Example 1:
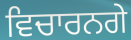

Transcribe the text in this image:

ਵਿਚਾਰਨਗੇ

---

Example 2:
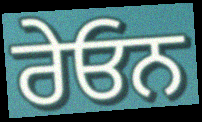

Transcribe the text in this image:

ਰੇਓਨ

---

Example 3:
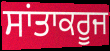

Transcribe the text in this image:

ਸਾਂਤਾਕਰੂਜ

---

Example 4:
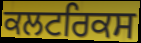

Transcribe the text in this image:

ਕਲਟਰਿਕਸ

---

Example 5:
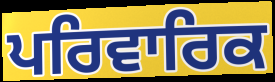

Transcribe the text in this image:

ਪਰਿਵਾਰਿਕ